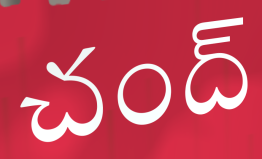
చంద్